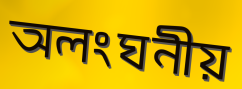
অলংঘনীয়